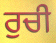
ਰੁਚੀ